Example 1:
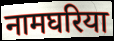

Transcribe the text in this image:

नामघरिया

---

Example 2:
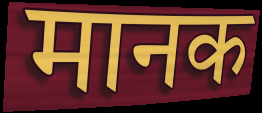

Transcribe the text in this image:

मानक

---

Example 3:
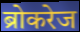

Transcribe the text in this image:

ब्रोकरेज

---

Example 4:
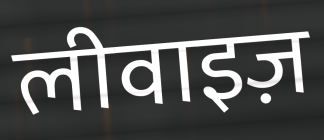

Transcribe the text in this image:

लीवाइज़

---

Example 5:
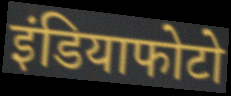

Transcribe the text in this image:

इंडियाफोटो